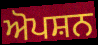
ਅੋਪਸ਼ਨ